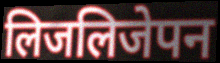
लिजलिजेपन